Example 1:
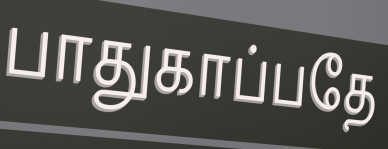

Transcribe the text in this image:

பாதுகாப்பதே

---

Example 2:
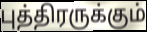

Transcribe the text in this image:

புத்திரருக்கும்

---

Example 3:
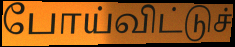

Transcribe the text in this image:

போய்விட்டுச்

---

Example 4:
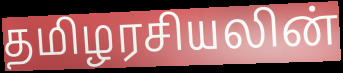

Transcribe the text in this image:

தமிழரசியலின்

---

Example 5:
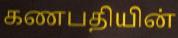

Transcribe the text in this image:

கணபதியின்